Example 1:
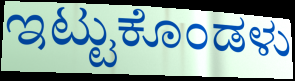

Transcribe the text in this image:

ಇಟ್ಟುಕೊಂಡಳು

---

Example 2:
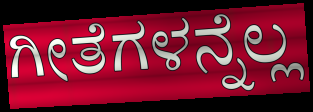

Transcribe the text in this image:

ಗೀತೆಗಳನ್ನೆಲ್ಲ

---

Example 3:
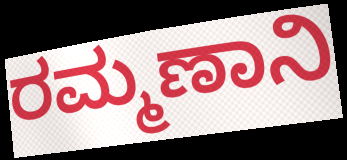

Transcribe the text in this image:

ರಮ್ಮಣಾನಿ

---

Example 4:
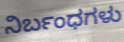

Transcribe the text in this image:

ನಿರ್ಬಂಧಗಳು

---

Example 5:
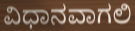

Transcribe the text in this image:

ವಿಧಾನವಾಗಲಿ